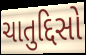
ચાતુદ્દિસો